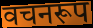
वचनरूप